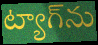
ట్యాగ్‌ను